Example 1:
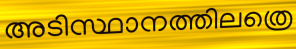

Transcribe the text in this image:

അടിസ്ഥാനത്തിലത്രെ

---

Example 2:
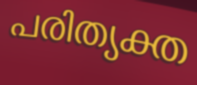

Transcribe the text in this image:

പരിത്യക്ത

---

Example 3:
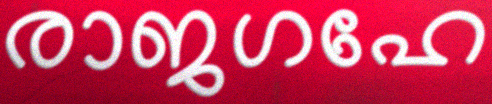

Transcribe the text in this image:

രാജഗഹേ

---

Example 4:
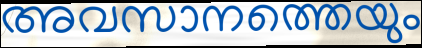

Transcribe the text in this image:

അവസാനത്തെയും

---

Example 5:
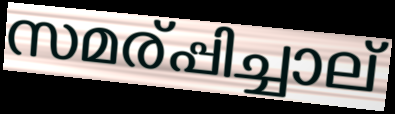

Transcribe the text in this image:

സമര്പ്പിച്ചാല്